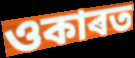
ওকাৰত